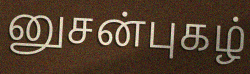
னுசன்புகழ்